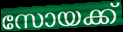
സോയക്ക്